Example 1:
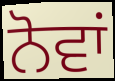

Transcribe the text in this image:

ਨੋਵਾਂ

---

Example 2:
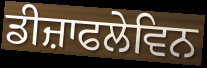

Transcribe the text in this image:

ਡੀਜ਼ਾਫਲੇਵਿਨ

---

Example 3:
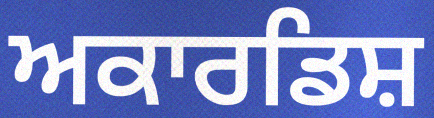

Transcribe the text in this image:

ਅਕਾਰਡਿਸ਼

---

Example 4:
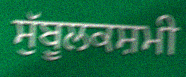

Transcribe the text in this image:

ਸੁੱਬੂਲਕਸ਼ਮੀ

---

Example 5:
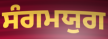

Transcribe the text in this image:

ਸੰਗਮਯੁਗ